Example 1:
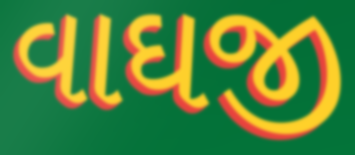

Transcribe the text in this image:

વાઘજી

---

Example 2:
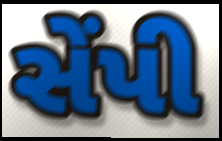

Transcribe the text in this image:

સેંપી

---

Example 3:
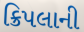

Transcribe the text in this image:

ક્રિપલાની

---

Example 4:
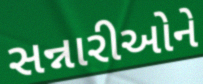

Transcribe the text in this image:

સન્નારીઓને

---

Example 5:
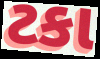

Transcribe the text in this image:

ટકા